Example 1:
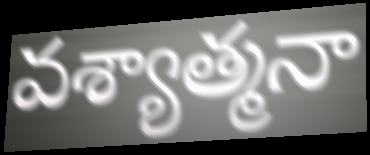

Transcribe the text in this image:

వశ్యాత్మనా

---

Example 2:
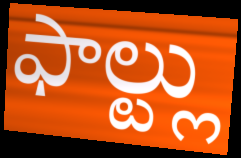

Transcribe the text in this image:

ఫాల్ట్లు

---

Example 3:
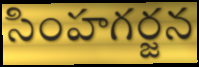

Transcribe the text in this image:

సింహగర్జన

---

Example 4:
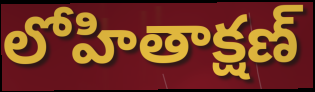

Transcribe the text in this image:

లోహితాక్షణ్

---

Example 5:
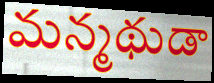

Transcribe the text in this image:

మన్మథుడా